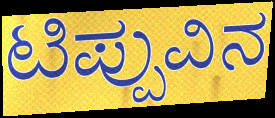
ಟಿಪ್ಪುವಿನ